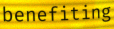
benefiting